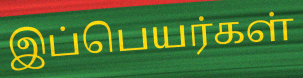
இப்பெயர்கள்